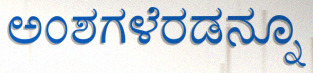
ಅಂಶಗಳೆರಡನ್ನೂ